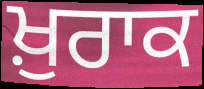
ਖ਼ੁਰਾਕ